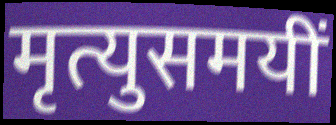
मृत्युसमयीं